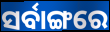
ସର୍ବାଙ୍ଗରେ